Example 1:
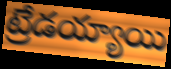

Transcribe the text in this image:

ట్రేడయ్యాయి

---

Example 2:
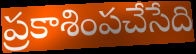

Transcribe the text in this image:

ప్రకాశింపచేసేది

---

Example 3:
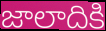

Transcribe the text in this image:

జాలాదికి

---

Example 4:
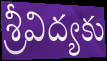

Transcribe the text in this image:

శ్రీవిద్యకు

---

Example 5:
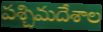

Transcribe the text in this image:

పశ్చిమదేశాల